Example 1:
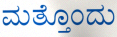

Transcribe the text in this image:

ಮತ್ತೊಂದು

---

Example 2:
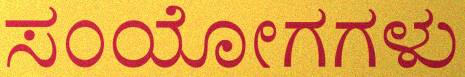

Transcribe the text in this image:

ಸಂಯೋಗಗಳು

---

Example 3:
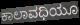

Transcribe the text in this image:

ಕಾಲಾವಧಿಯೂ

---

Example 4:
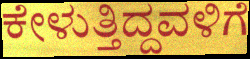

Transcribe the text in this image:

ಕೇಳುತ್ತಿದ್ದವಳಿಗೆ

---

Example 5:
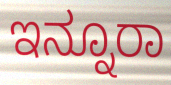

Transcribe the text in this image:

ಇನ್ನೂರಾ